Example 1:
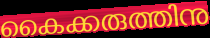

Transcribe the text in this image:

കൈക്കരുത്തിനു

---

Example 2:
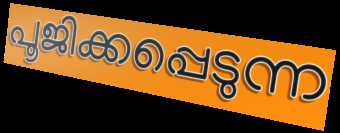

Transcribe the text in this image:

പൂജിക്കപ്പെടുന്ന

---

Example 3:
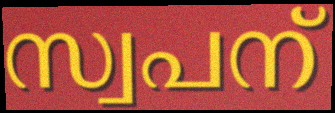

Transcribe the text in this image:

സ്വപന്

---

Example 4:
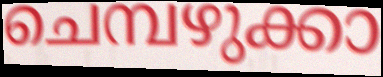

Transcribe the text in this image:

ചെമ്പഴുക്കാ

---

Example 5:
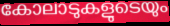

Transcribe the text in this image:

കോലാടുകളുടെയും